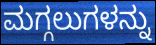
ಮಗ್ಗಲುಗಳನ್ನು